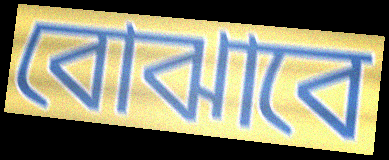
বোঝাবে